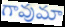
గావుమా